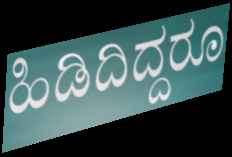
ಹಿಡಿದಿದ್ದರೂ